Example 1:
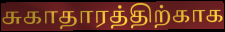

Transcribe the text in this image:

சுகாதாரத்திற்காக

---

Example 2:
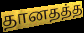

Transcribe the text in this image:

தானதத்த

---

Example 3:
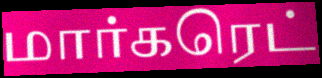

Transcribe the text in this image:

மார்கரெட்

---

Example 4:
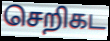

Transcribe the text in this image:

செறிகட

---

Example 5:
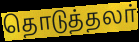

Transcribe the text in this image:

தொடுத்தலர்